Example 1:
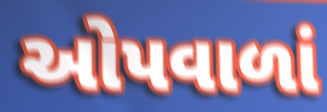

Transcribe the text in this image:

ઓપવાળાં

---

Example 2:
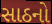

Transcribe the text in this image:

સાઠનો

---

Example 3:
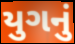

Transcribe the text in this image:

યુગનું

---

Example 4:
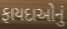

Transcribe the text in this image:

ફાયદાઓનું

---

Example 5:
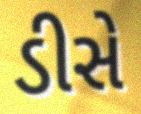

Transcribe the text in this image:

ડીસે